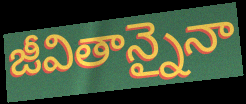
జీవితాన్నైనా